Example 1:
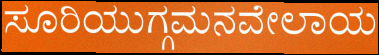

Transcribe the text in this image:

ಸೂರಿಯುಗ್ಗಮನವೇಲಾಯ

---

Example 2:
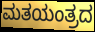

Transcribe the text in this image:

ಮತಯಂತ್ರದ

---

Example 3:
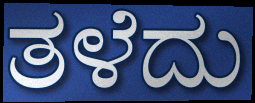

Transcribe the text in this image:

ತಳೆದು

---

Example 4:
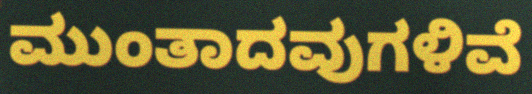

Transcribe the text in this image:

ಮುಂತಾದವುಗಳಿವೆ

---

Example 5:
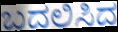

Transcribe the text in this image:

ಬದಲಿಸಿದ